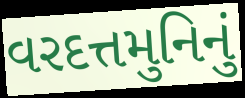
વરદત્તમુનિનું